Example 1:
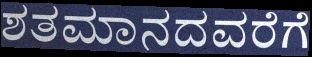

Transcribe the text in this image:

ಶತಮಾನದವರೆಗೆ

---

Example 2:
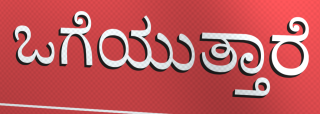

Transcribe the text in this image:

ಒಗೆಯುತ್ತಾರೆ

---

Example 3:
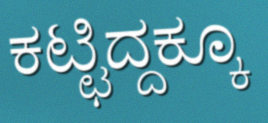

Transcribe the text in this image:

ಕಟ್ಟಿದ್ದಕ್ಕೂ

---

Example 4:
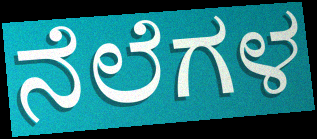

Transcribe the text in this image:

ನೆಲೆಗಳ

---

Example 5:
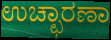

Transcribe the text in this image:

ಉಚ್ಛಾರಣಾ